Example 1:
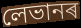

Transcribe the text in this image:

লেভানৰ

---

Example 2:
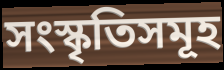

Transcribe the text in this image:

সংস্কৃতিসমূহ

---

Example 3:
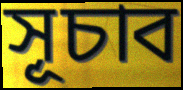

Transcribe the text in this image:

সূচাব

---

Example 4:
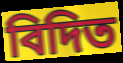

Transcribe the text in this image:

বিদিত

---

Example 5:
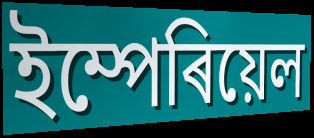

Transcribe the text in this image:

ইম্পেৰিয়েল